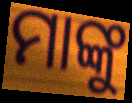
ମାଙ୍କୁ